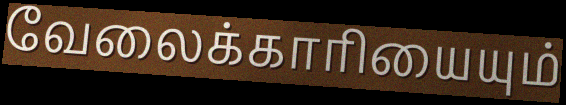
வேலைக்காரியையும்